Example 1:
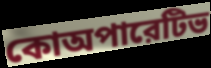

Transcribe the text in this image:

কোঅপারেটিভ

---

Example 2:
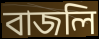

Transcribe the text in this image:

বাজলি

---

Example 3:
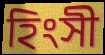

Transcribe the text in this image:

হিংসী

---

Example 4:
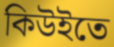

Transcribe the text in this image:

কিউইতে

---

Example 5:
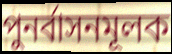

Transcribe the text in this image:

পুনর্বাসনমূলক